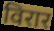
विरार